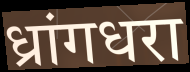
ध्रांगधरा